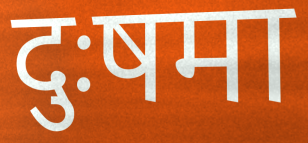
दुःषमा